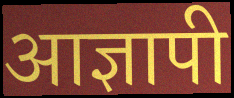
आज्ञापी